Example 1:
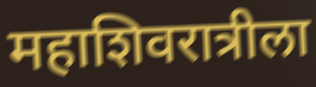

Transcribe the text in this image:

महाशिवरात्रीला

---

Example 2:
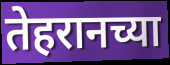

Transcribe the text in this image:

तेहरानच्या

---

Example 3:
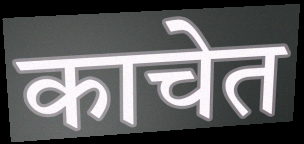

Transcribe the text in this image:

काचेत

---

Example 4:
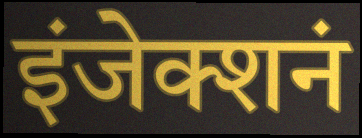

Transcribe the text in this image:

इंजेक्शनं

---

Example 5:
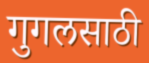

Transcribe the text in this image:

गुगलसाठी